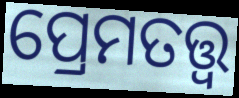
ପ୍ରେମତତ୍ତ୍ୱ